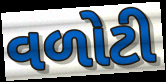
વળોટી